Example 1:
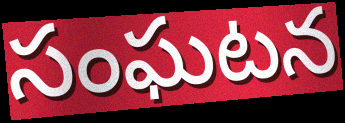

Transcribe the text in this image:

సంఘటన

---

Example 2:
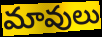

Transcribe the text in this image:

మావులు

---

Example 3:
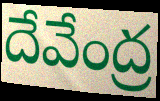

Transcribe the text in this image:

దేవేంద్ర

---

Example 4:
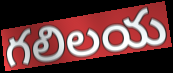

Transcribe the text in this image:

గలిలయ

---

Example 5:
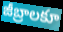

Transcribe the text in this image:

జీబ్రాలకూ